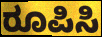
ರೂಪಿಸಿ